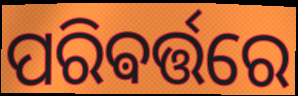
ପରିଵର୍ତ୍ତରେ